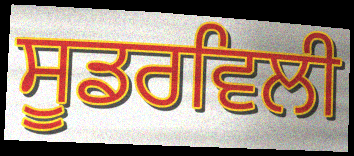
ਸੂਡਰਵਿਲੀ